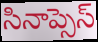
సినాప్సెస్